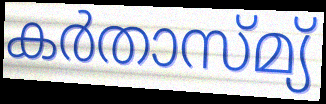
കർതാസ്മ്യ്